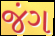
જંગ